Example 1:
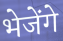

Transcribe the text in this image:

भेजेंगे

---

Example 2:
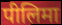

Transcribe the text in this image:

पीलिमा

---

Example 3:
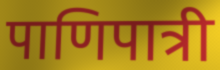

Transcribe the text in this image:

पाणिपात्री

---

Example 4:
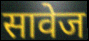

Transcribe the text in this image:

सावेज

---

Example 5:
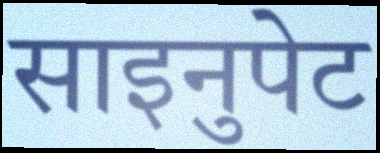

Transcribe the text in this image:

साइनुपेट